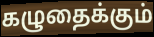
கழுதைக்கும்